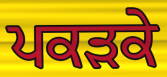
ਪਕੜਕੇ